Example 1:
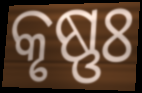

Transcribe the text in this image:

କୃଷ୍ଣଃ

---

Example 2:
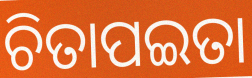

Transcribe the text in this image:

ଚିତାପଇତା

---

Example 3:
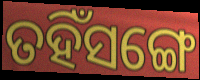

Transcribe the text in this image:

ତହିଁସଙ୍ଗେ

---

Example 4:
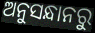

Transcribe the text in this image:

ଅନୁସନ୍ଧାନରୁ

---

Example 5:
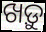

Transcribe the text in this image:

ଖଡ଼ୁ